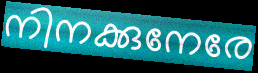
നിനക്കുനേരേ